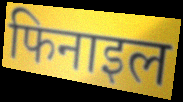
फिनाइल